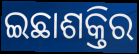
ଇଛାଶକ୍ତିର